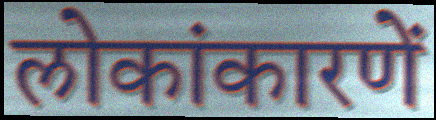
लोकांकारणें